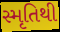
સ્મૃતિથી